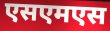
एसएमएस